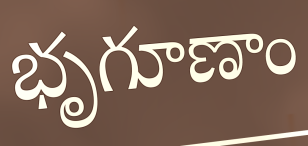
భృగూణాం